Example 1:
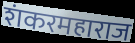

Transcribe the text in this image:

शंकरमहाराज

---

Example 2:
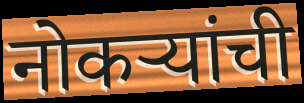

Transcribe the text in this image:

नोकऱ्यांची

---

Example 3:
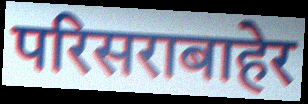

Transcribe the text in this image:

परिसराबाहेर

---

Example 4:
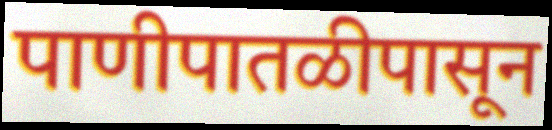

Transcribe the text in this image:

पाणीपातळीपासून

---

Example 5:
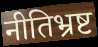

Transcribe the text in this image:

नीतिभ्रष्ट